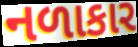
નળાકાર